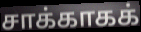
சாக்காகக்